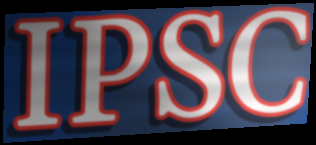
IPSC